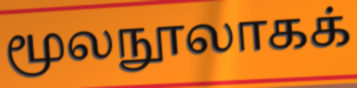
மூலநூலாகக்